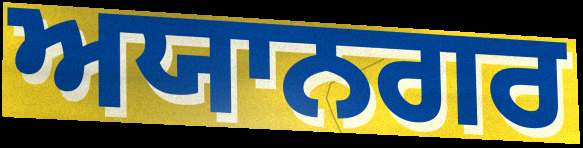
ਅਯਾਨਗਰ